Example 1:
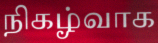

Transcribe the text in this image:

நிகழ்வாக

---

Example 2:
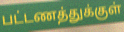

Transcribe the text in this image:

பட்டணத்துக்குள்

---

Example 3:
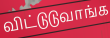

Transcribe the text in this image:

விட்டுடுவாங்க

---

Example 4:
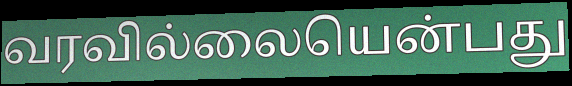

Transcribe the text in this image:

வரவில்லையென்பது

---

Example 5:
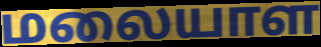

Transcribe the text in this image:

மலையாள